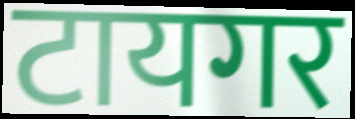
टायगर